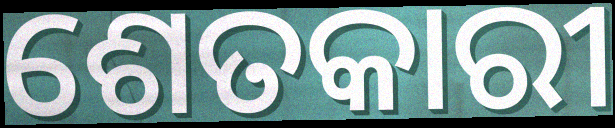
ଶେତକାରୀ